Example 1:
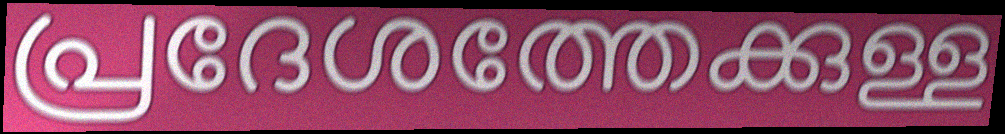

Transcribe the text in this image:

പ്രദേശത്തേക്കുള്ള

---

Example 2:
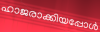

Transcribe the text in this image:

ഹാജരാക്കിയപ്പോൾ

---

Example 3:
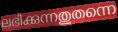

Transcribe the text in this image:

ലഭിക്കുന്നതുതന്നെ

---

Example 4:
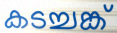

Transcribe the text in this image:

കടച്ചങ്ക്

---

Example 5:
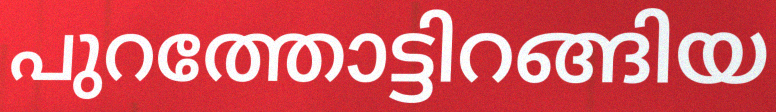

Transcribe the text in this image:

പുറത്തോട്ടിറങ്ങിയ